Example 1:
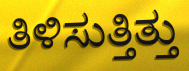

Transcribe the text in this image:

ತಿಳಿಸುತ್ತಿತ್ತು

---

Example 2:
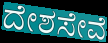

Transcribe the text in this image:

ದೇಶಸೇವೆ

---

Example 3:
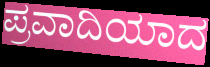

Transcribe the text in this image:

ಪ್ರವಾದಿಯಾದ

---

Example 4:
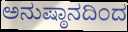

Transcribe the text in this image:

ಅನುಷ್ಠಾನದಿಂದ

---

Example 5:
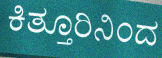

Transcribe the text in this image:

ಕಿತ್ತೂರಿನಿಂದ